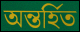
অন্তর্হিত